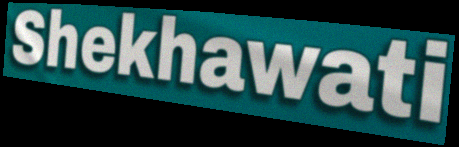
Shekhawati